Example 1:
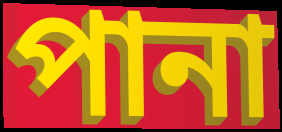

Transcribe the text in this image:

পানা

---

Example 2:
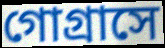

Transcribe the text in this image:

গোগ্রাসে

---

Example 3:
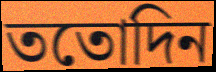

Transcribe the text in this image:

ততোদিন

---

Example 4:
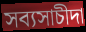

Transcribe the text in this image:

সব্যসাচীদা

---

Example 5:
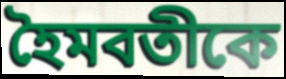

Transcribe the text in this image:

হৈমবতীকে